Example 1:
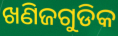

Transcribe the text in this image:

ଖଣିଜଗୁଡିକ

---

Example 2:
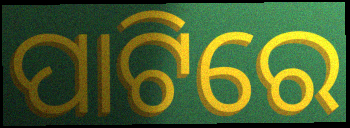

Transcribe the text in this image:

ପାଟିରେ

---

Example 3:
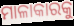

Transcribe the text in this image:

ମାଳାକାରକୁ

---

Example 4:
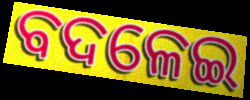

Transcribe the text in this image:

ବଦଳେଇ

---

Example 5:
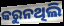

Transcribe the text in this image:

କରୁନଥିଲି